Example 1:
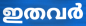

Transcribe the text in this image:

ഇതവർ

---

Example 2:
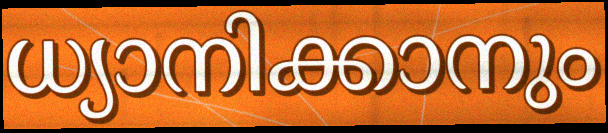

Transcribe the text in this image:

ധ്യാനിക്കാനും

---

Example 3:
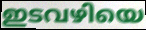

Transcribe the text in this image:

ഇടവഴിയെ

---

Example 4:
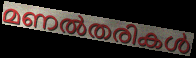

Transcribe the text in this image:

മണൽതരികൾ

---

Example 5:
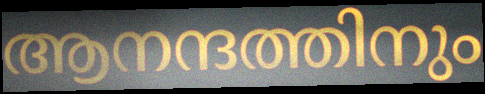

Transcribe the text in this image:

ആനന്ദത്തിനും